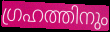
ഗ്രഹത്തിനും